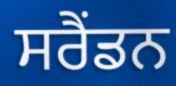
ਸਰੈਂਡਨ